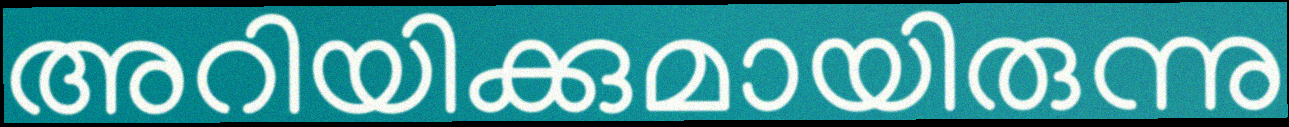
അറിയിക്കുമായിരുന്നു